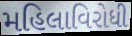
મહિલાવિરોધી